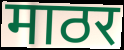
माठर